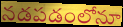
నడపడంలోనూ